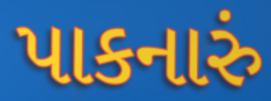
પાકનારું